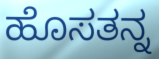
ಹೊಸತನ್ನ